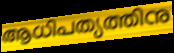
ആധിപത്യത്തിനു